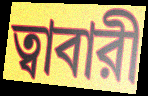
ত্বাবারী